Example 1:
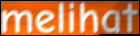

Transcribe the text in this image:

melihat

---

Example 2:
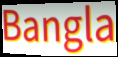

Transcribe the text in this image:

Bangla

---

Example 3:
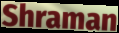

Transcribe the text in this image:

Shraman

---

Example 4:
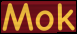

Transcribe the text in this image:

Mok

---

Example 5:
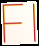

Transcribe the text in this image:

FI